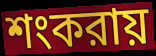
শংকরায়